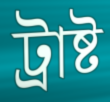
ট্রাষ্ট